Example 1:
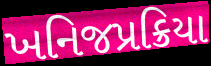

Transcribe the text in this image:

ખનિજપ્રક્રિયા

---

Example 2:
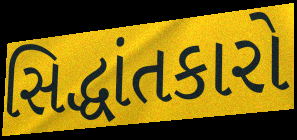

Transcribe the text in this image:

સિદ્ધાંતકારો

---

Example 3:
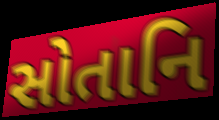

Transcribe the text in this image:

સોતાનિ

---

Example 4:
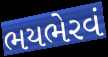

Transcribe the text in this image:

ભયભેરવં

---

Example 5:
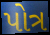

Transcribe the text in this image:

પોત્ર